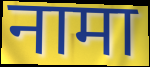
नामा